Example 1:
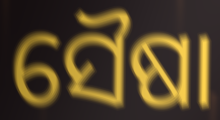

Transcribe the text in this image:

ସୈଷା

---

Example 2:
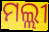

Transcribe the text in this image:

ମଲ୍ଲୀ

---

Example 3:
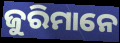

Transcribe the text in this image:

ଜୁରିମାନେ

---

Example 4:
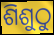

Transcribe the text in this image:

ଶିଶୁଠୁ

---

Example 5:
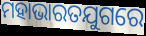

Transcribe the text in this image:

ମହାଭାରତଯୁଗରେ